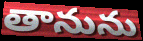
తానును